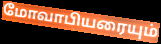
மோவாபியரையும்